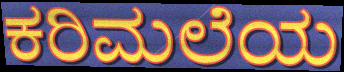
ಕರಿಮಲೆಯ